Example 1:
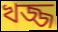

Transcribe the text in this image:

খজ্জ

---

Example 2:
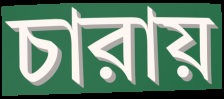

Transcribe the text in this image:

চারায়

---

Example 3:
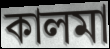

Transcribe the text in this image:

কালমা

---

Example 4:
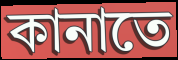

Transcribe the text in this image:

কানাতে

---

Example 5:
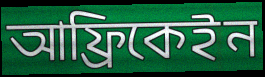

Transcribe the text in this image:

আফ্রিকেইন